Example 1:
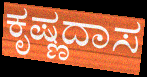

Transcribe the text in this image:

ಕೃಷ್ಣದಾಸ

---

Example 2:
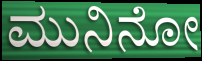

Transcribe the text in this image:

ಮುನಿನೋ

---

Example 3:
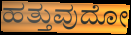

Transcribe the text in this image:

ಹತ್ತುವುದೋ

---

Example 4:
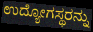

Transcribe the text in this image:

ಉದ್ಯೋಗಸ್ಥರನ್ನು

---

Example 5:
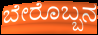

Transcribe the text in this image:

ಬೇರೊಬ್ಬನ